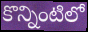
కొన్నింటిలో